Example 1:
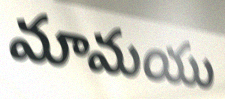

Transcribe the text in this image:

మామయు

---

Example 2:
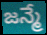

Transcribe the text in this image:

జన్మే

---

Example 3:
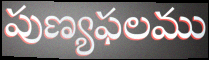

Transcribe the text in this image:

పుణ్యఫలము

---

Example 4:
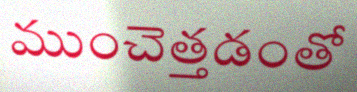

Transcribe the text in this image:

ముంచెత్తడంతో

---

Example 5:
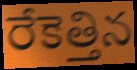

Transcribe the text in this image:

రేకెత్తిన